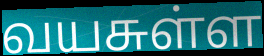
வயசுள்ள